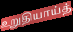
உறுதியாய்த்